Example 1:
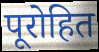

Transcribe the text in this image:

पूरोहित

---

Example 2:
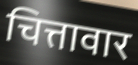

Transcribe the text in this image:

चित्तावार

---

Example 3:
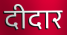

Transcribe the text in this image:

दीदार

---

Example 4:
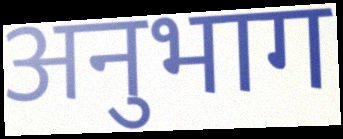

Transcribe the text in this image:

अनुभाग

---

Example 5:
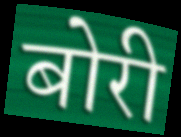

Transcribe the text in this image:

बोरी